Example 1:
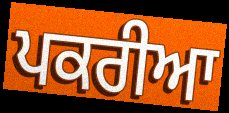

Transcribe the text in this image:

ਪਕਰੀਆ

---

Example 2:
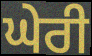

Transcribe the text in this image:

ਘੇਰੀ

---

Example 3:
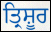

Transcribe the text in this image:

ਤ੍ਰਿਸ਼ੂਰ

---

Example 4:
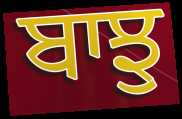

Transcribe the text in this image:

ਬਾਝੁ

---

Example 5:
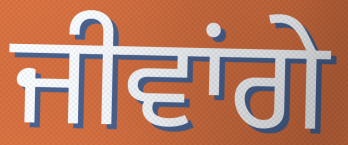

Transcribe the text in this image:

ਜੀਵਾਂਗੇ